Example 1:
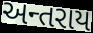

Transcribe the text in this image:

અન્તરાય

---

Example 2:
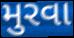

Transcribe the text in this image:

મુરવા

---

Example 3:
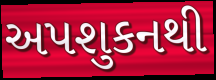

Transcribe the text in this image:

અપશુકનથી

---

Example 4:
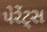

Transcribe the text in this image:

પેરેંટ્સ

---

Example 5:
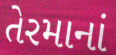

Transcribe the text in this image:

તેરમાનાં